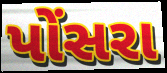
પોંસરા